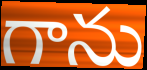
గాను